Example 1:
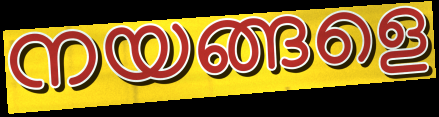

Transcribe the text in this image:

നയങ്ങളെ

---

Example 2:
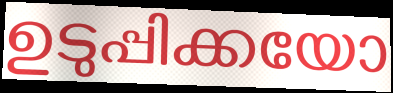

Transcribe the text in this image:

ഉടുപ്പിക്കയോ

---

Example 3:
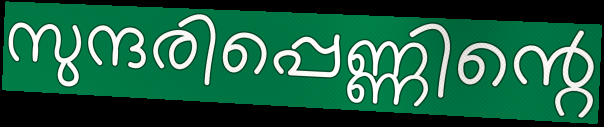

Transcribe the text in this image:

സുന്ദരിപ്പെണ്ണിന്റെ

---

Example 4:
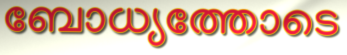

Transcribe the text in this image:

ബോധ്യത്തോടെ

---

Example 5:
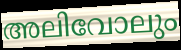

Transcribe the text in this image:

അലിവോലും